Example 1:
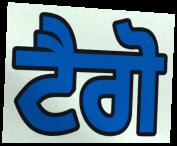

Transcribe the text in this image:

ਟੈਗੋ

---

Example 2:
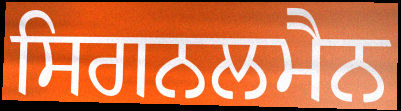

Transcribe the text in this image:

ਸਿਗਨਲਮੈਨ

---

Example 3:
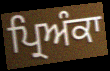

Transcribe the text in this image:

ਪ੍ਰਿਅੰਕਾ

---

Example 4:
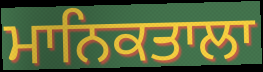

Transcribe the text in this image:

ਮਾਨਿਕਤਾਲਾ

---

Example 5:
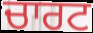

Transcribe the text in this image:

ਚਾਰਟ